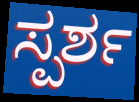
ಸ್ಪರ್ಶ